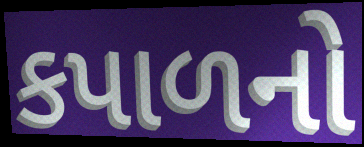
કપાળનો